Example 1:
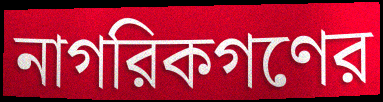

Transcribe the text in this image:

নাগরিকগণের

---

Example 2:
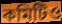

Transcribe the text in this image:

কমিটিও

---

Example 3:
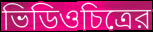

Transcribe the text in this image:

ভিডিওচিত্রের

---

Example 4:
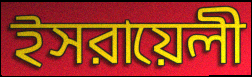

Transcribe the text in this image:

ইসরায়েলী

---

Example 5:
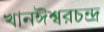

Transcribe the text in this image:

খানঈশ্বরচন্দ্র